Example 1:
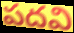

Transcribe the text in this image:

పదవి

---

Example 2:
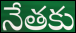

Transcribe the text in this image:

నేతకు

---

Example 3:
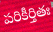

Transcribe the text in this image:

పరికీర్తితః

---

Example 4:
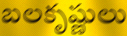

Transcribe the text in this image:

బలకృష్ణులు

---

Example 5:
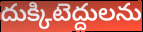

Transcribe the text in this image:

దుక్కిటెద్దులను